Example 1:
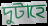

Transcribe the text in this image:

দুটাহে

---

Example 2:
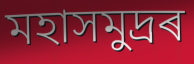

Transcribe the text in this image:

মহাসমুদ্ৰৰ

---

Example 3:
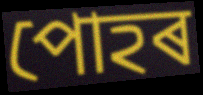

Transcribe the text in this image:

পোহৰ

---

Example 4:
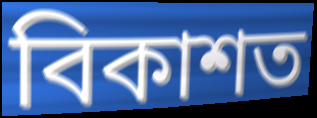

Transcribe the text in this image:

বিকাশত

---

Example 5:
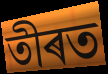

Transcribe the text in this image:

তীৰত